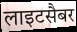
लाइटसैबर